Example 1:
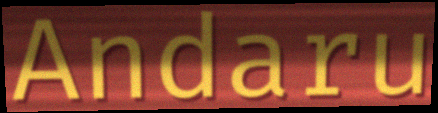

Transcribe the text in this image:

Andaru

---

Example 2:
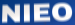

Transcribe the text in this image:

NIEO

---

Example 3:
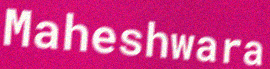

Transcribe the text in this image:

Maheshwara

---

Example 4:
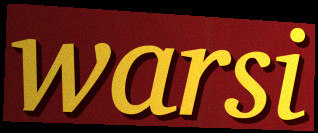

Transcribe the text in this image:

warsi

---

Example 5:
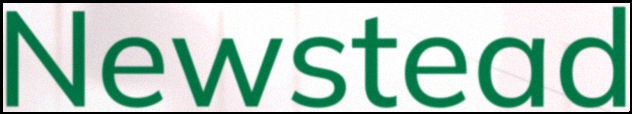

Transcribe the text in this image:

Newstead